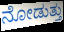
ನೋಡುತ್ತು